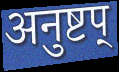
अनुष्टप्